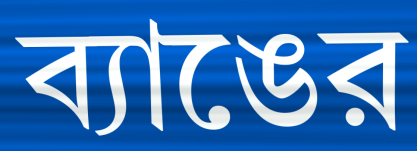
ব্যাঙের